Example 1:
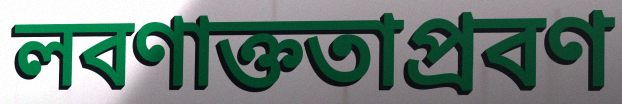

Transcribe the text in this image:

লবণাক্ততাপ্রবণ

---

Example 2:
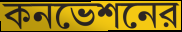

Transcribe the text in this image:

কনভেশনের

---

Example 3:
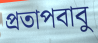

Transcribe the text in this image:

প্রতাপবাবু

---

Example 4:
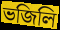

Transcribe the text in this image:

ভজিলি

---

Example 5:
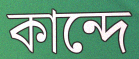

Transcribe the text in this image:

কান্দে